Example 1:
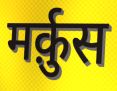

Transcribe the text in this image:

मर्क़ुस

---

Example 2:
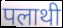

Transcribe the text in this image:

पलाथी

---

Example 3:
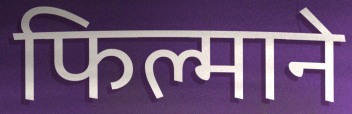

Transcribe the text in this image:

फिल्‍माने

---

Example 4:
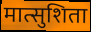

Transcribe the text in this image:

मात्सुशिता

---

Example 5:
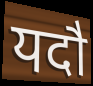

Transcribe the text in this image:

यदौ